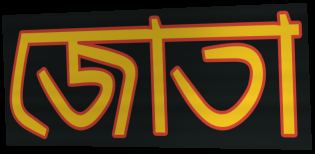
জোতা